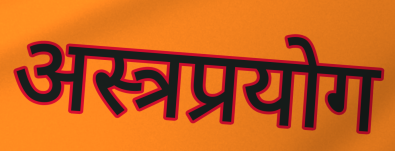
अस्त्रप्रयोग